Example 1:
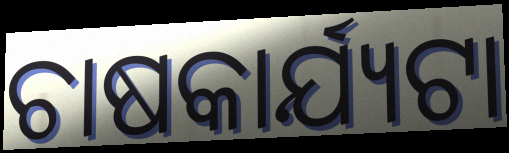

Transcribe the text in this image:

ଚାଷକାର୍ଯ୍ୟଟା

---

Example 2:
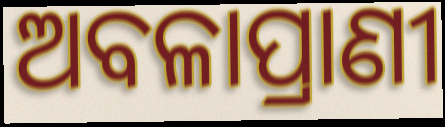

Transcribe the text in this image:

ଅବଳାପ୍ରାଣୀ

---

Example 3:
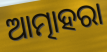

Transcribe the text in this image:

ଆତ୍ମାହରା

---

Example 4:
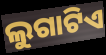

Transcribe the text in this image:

ଲୁଗାଟିଏ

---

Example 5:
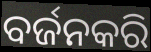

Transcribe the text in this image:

ବର୍ଜନକରି